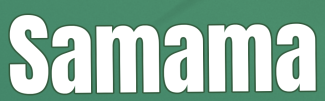
Samama